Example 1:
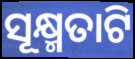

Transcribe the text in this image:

ସୂକ୍ଷ୍ମତାଟି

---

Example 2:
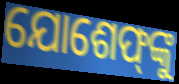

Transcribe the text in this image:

ଯୋଶେଫ୍‌ଙ୍କୁ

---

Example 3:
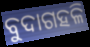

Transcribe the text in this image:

ବୁଦାଗହଳି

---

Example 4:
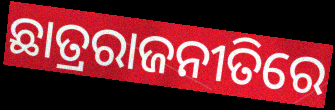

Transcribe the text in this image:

ଛାତ୍ରରାଜନୀତିରେ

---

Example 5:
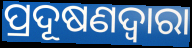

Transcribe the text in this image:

ପ୍ରଦୂଷଣଦ୍ବାରା